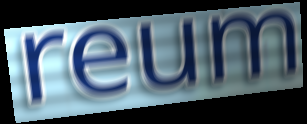
reum